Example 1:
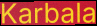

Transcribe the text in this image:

Karbala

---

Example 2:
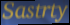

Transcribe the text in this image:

Sastrty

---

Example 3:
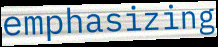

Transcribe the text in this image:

emphasizing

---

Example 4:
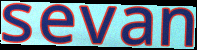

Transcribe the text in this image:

sevan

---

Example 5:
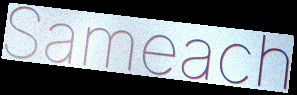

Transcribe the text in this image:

Sameach